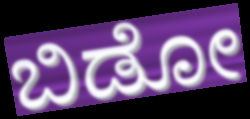
ಬಿಡೋ